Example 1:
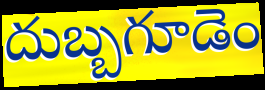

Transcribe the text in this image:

దుబ్బగూడెం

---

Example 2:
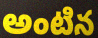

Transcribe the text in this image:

అంటిన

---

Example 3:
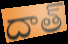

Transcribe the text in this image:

దాత్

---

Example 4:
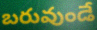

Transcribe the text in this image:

బరువుండే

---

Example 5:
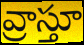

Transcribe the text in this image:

వ్రాస్తూ